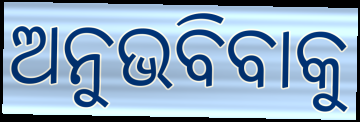
ଅନୁଭବିବାକୁ